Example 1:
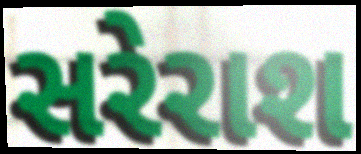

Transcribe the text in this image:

સરેરાશ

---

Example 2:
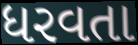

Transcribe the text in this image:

ધરવતા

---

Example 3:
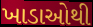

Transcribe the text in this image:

ખાડાઓથી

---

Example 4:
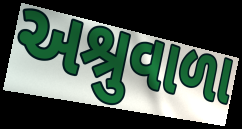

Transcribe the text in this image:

અશ્રુવાળા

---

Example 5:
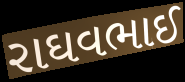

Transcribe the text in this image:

રાઘવભાઈ